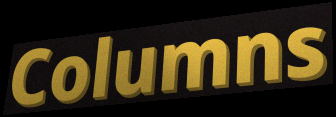
Columns